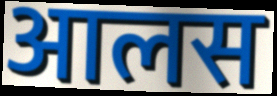
आलस